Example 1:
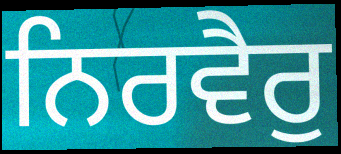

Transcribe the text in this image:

ਨਿਰਵੈਰੁ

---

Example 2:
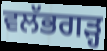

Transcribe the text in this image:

ਵਲੱਭਗੜ੍ਹ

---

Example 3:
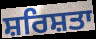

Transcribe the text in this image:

ਸ਼ਰਿਸ਼ਤਾ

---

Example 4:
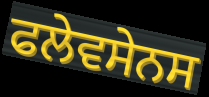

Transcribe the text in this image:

ਫਲੇਵਸੇਨਸ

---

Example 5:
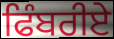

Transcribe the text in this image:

ਫਿੰਬਰੀਏ